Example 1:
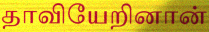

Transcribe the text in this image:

தாவியேறினான்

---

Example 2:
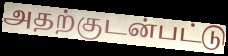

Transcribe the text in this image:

அதற்குடன்பட்டு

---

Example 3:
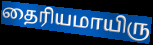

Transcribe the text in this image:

தைரியமாயிரு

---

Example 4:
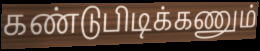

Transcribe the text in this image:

கண்டுபிடிக்கணும்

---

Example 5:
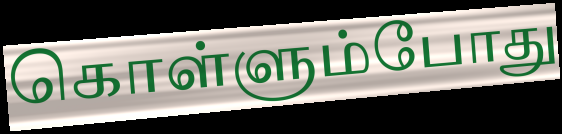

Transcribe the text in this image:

கொள்ளும்போது